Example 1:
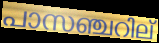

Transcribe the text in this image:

പാസഞ്ചറില്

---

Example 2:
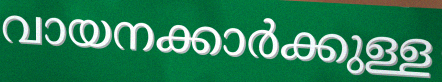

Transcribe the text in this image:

വായനക്കാർക്കുള്ള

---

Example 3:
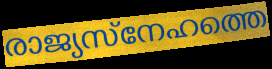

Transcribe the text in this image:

രാജ്യസ്‌നേഹത്തെ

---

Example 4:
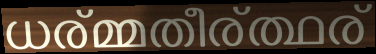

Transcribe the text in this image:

ധര്മ്മതീര്ത്ഥര്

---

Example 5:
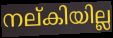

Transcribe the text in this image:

നല്കിയില്ല